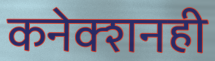
कनेक्शनही